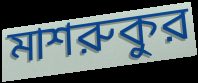
মাশরুকুর